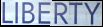
LIBERTY